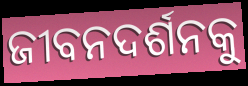
ଜୀବନଦର୍ଶନକୁ